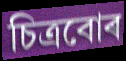
চিত্ৰবোৰ